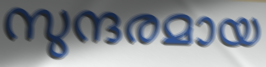
സുന്ദരമായ